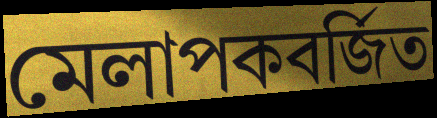
মেলাপকবর্জিত